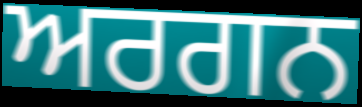
ਅਰਗਨ